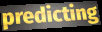
predicting